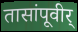
तासांपूवीर्